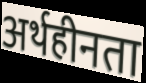
अर्थहीनता